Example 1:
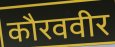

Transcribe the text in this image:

कौरववीर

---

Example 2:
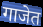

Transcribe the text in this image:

गाजेत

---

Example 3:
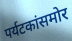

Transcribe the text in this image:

पर्यटकांसमोर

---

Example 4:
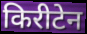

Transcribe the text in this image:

किरीटेन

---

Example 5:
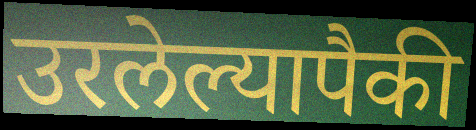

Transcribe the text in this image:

उरलेल्यापैकी